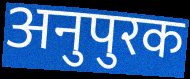
अनुपुरक